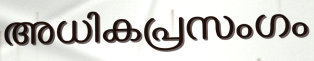
അധികപ്രസംഗം